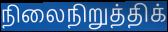
நிலைநிறுத்திக்